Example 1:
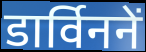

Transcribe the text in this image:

डार्विननें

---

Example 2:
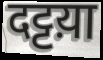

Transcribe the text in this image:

दट्टय़ा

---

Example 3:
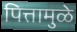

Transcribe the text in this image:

पित्तामुळे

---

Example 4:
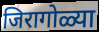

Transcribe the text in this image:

जिरागोळ्या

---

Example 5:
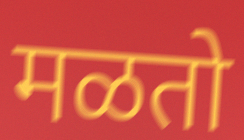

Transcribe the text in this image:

मळतो